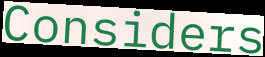
Considers